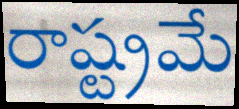
రాష్ట్రమే